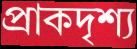
প্রাকদৃশ্য